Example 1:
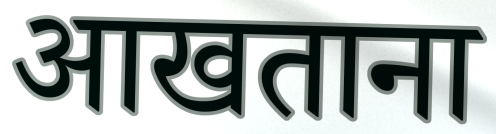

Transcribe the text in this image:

आखताना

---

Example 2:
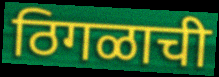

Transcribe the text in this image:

ठिगळाची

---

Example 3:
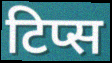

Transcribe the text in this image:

टिप्स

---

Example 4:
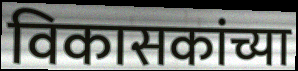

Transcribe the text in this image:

विकासकांच्या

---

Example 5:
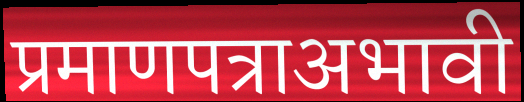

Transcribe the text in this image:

प्रमाणपत्राअभावी